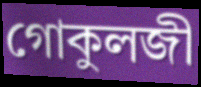
গোকুলজী